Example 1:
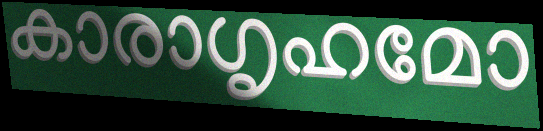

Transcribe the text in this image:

കാരാഗൃഹമോ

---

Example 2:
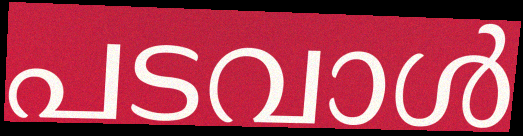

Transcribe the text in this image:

പടവാൾ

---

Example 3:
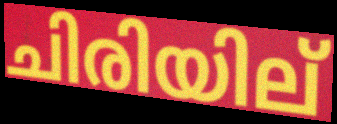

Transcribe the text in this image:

ചിരിയില്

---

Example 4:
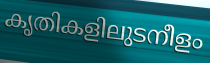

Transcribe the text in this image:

കൃതികളിലുടനീളം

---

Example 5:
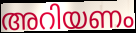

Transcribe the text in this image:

അറിയണം